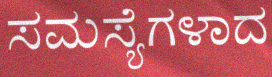
ಸಮಸ್ಯೆಗಳಾದ